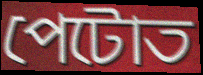
পেটোত